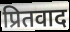
प्रितवाद